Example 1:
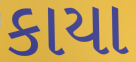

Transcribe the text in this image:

કાયા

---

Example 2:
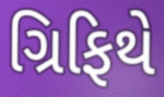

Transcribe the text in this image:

ગ્રિફિથે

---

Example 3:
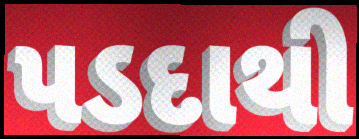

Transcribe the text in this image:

પડદાથી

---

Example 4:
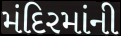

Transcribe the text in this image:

મંદિરમાંની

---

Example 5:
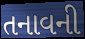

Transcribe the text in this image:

તનાવની